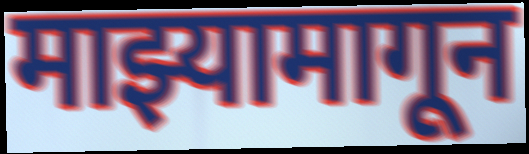
माझ्यामागून